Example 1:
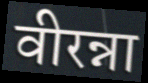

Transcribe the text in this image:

वीरन्ना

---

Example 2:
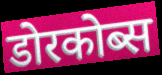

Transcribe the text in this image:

डोरकोब्स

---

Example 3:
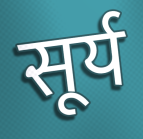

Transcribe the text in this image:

सूर्य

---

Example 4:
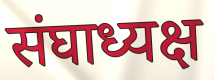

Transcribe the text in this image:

संघाध्यक्ष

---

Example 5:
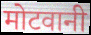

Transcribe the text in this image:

मोटवानी